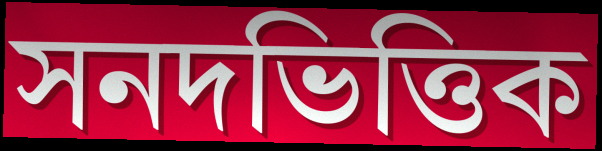
সনদভিত্তিক